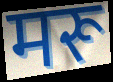
मरू